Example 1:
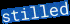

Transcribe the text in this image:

stilled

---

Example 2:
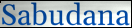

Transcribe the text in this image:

Sabudana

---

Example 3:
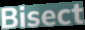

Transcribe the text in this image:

Bisect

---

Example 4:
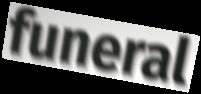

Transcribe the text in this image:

funeral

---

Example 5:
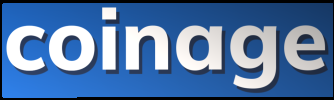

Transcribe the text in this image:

coinage